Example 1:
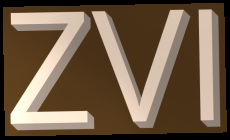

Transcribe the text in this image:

ZVI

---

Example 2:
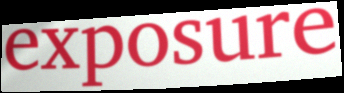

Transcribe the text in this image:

exposure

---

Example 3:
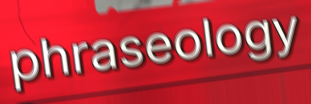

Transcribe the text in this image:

phraseology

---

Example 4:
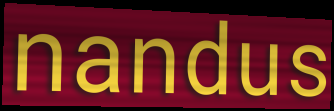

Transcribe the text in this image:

nandus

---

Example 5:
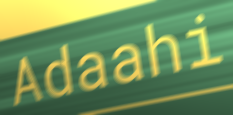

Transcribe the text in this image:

Adaahi